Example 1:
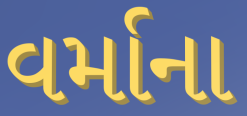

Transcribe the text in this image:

વર્માના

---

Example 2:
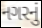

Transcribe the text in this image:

નગરનું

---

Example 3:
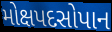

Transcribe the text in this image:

મોક્ષપદસોપાન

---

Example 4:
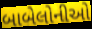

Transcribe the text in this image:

બાબેલોનીઓ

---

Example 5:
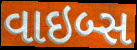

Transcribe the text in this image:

વાઇબ્સ